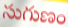
సుగుణం